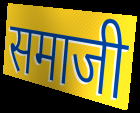
समाजी